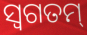
ସ୍ୱଗତମ୍